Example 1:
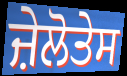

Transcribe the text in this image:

ਜ਼ੇਲੋਤੇਸ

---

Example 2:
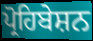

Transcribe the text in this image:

ਪ੍ਰੋਹਿਬੇਸ਼ਨ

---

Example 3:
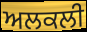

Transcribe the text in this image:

ਅਲਕਲੀ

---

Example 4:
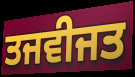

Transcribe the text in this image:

ਤਜਵੀਜਤ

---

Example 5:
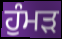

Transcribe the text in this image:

ਹੁੰਮੜ